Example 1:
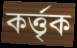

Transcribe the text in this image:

কর্ত্তৃক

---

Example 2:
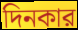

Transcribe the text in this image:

দিনকার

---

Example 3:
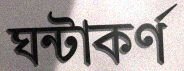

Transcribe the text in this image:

ঘন্টাকর্ণ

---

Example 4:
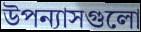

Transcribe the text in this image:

উপন্যাসগুলো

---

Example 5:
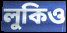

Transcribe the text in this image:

লুকিও